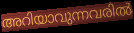
അറിയാവുന്നവരിൽ